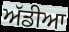
ਅੱਡੀਆ